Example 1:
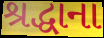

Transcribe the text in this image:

શ્રદ્ધાના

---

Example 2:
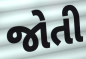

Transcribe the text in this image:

જોતી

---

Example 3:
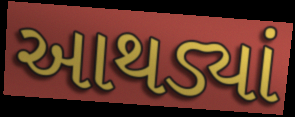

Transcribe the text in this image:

આથડ્યાં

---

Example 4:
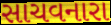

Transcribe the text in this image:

સાચવનારા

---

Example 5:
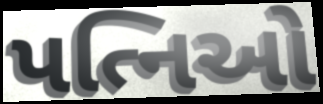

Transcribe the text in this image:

પત્નિઓ